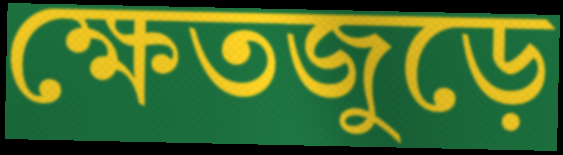
ক্ষেতজুড়ে